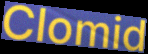
Clomid